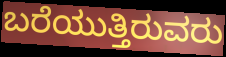
ಬರೆಯುತ್ತಿರುವರು